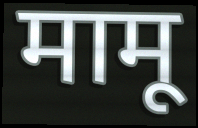
मामू